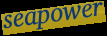
seapower